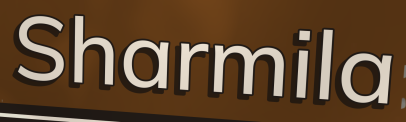
Sharmila